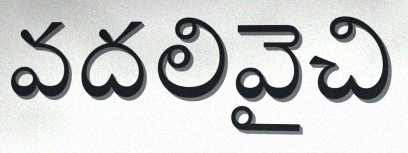
వదలివైచి